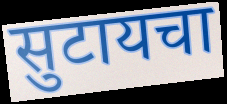
सुटायचा